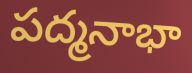
పద్మనాభా